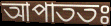
আপাততঃ